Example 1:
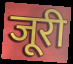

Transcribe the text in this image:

जूरी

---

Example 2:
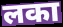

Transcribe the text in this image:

लका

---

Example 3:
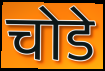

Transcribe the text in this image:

चोडे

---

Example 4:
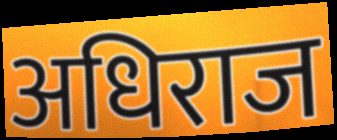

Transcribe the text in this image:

अधिराज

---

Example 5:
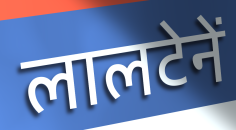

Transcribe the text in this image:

लालटेनें